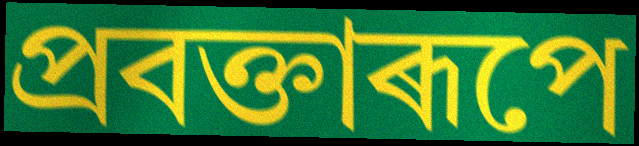
প্ৰবক্তাৰূপে